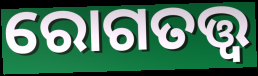
ରୋଗତତ୍ତ୍ୱ